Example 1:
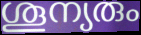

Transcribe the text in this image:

ശൂന്യരും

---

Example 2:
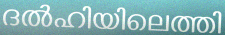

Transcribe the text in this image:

ദൽഹിയിലെത്തി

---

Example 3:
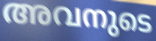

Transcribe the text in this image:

അവനുടെ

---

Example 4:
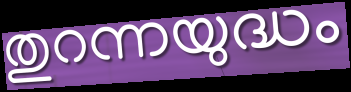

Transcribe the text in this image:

തുറന്നയുദ്ധം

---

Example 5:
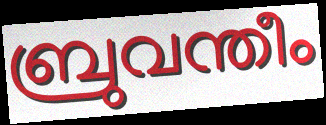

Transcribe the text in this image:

ബ്രുവന്തീം